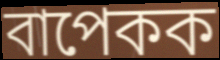
বাপেকক